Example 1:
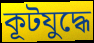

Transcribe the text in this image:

কূটযুদ্ধে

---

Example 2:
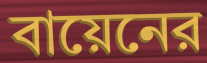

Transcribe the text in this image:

বায়েনের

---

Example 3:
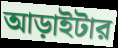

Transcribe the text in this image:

আড়াইটার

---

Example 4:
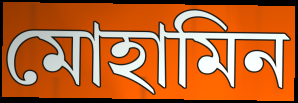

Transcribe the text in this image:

মোহামিন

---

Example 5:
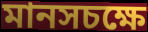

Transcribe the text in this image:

মানসচক্ষে